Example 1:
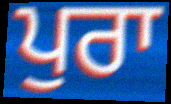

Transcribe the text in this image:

ਪੁਰਾ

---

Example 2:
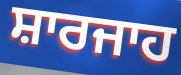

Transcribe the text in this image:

ਸ਼ਾਰਜਾਹ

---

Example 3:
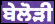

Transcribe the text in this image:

ਬੇਲੋੜੀ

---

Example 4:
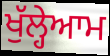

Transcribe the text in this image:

ਖੁੱਲ੍ਹੇਆਮ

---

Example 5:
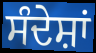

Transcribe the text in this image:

ਸੰਦੇਸ਼ਾਂ